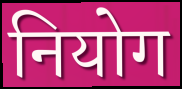
नियोग